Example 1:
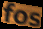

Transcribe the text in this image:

fos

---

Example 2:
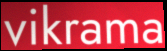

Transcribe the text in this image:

vikrama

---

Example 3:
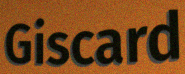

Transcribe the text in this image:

Giscard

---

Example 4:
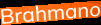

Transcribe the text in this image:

Brahmano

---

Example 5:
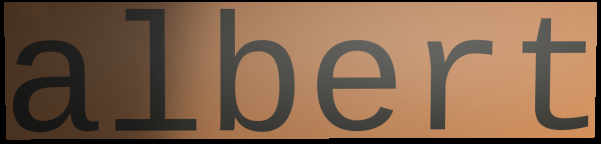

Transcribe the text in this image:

albert